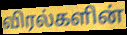
விரல்களின்